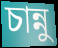
চান্নু